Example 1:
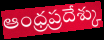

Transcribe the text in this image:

ఆంధ్రప్రదేశ్కు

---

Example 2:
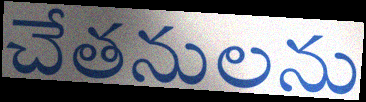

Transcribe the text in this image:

చేతనులను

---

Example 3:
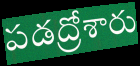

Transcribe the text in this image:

పడద్రోశారు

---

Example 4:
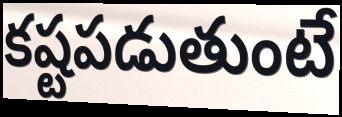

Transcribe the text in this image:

కష్టపడుతుంటే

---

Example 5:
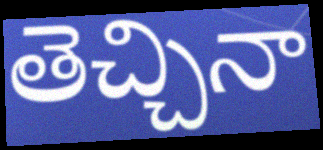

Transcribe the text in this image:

తెచ్చినా